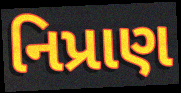
નિપ્રાણ